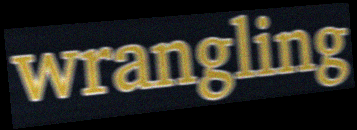
wrangling